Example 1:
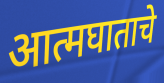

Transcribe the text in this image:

आत्मघाताचे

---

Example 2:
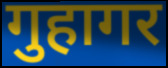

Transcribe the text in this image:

गुहागर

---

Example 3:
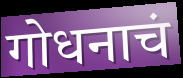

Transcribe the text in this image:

गोधनाचं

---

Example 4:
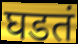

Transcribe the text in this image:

घडतं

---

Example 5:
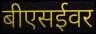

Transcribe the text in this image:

बीएसईवर